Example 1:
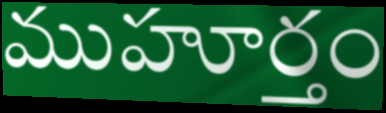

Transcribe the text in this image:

ముహూర్తం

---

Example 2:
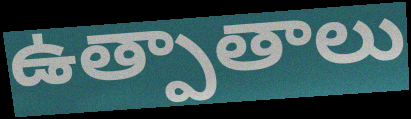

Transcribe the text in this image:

ఉత్పాతాలు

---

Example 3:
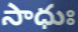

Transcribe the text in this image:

సాధుః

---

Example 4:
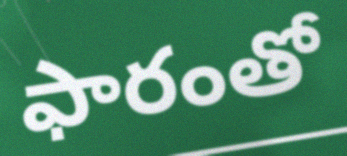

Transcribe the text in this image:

ఫారంతో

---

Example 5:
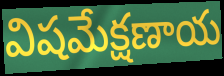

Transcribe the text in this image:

విషమేక్షణాయ